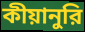
কীয়ানুরি